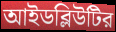
আইডব্লিউটির